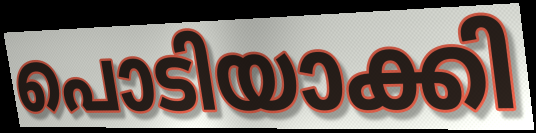
പൊടിയാക്കി